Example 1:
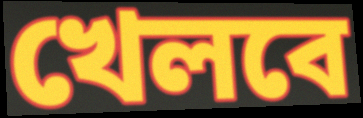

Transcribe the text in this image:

খেলবে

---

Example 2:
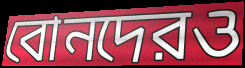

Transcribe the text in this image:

বোনদেরও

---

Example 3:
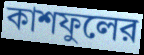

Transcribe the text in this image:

কাশফুলের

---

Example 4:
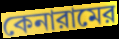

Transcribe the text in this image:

কেনারামের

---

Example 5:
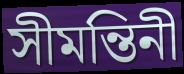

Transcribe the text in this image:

সীমন্তিনী